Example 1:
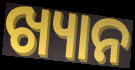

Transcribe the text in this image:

ଖ୍ୟାନ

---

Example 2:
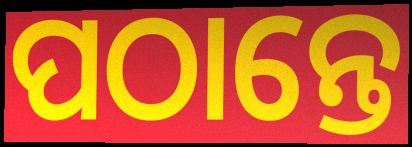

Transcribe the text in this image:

ପଠାନ୍ତେ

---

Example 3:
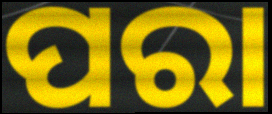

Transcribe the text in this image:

ପରା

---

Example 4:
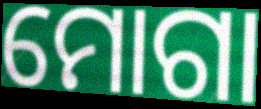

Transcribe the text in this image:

ମୋଗା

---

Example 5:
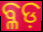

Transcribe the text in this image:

ବ୍ଳଡ଼